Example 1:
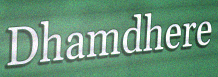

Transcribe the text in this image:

Dhamdhere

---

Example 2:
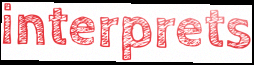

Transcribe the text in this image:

interprets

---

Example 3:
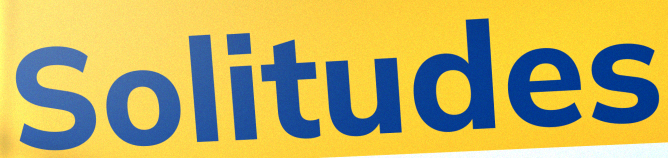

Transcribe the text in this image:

Solitudes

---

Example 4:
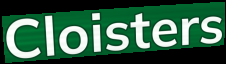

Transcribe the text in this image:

Cloisters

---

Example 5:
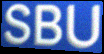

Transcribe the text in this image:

SBU